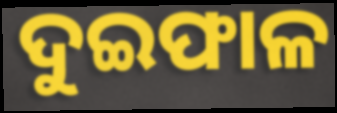
ଦୁଇଫାଳ